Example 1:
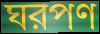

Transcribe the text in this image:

ঘরপণ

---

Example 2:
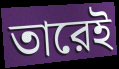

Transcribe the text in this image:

তারেই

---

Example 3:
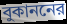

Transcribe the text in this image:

বুকাননের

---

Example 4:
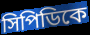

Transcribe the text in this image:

সিপিডিকে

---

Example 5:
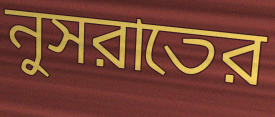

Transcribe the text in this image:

নুসরাতের